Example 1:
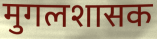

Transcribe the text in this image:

मुगलशासक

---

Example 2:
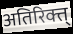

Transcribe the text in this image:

अतिरिक्त्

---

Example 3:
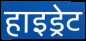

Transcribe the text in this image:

हाइड्रेट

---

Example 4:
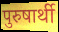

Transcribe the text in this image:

पुरुषार्थी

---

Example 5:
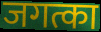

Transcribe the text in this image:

जगत्का